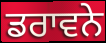
ਡਰਾਵਨੇ